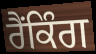
ਰੈੰਕਿੰਗ